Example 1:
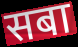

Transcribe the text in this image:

सबा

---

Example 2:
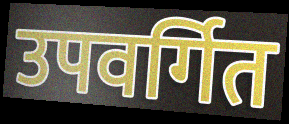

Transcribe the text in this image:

उपवर्गित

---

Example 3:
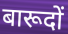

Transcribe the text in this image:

बारूदों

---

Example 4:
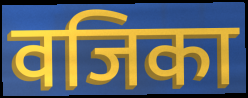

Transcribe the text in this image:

वजिका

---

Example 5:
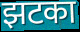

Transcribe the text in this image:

झटका